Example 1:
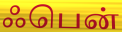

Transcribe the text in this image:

ஃபென்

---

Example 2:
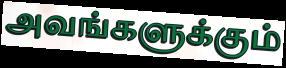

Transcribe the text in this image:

அவங்களுக்கும்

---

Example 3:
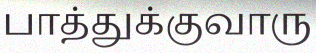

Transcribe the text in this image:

பாத்துக்குவாரு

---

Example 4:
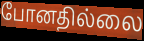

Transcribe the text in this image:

போனதில்லை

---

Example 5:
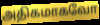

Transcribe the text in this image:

அதிகமாகவோ